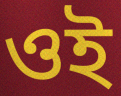
ওই